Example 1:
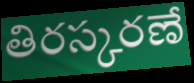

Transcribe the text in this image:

తిరస్కరణే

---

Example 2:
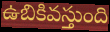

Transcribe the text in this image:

ఉబికివస్తుంది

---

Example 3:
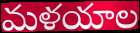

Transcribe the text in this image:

మళయాల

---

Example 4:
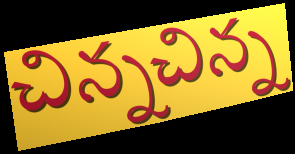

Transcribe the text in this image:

చిన్నచిన్న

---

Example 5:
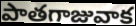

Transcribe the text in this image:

పాతగాజువాక